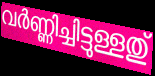
വർണ്ണിച്ചിട്ടുള്ളതു്